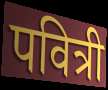
पवित्री